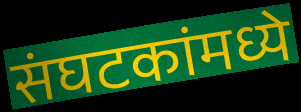
संघटकांमध्ये